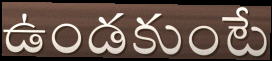
ఉండకుంటే